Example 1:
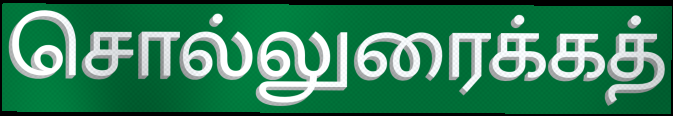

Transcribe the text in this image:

சொல்லுரைக்கத்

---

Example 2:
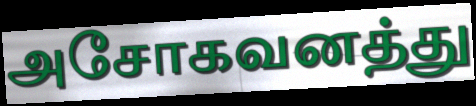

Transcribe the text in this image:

அசோகவனத்து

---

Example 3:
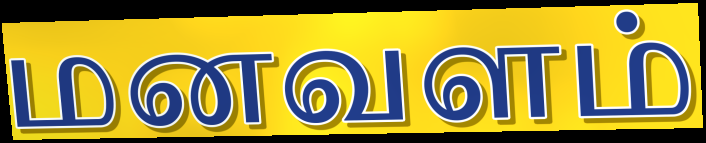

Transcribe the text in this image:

மனவளம்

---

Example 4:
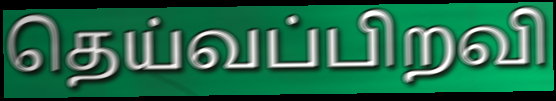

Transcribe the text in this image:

தெய்வப்பிறவி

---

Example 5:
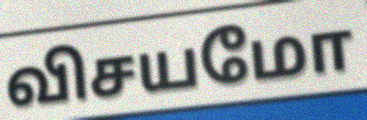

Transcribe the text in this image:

விசயமோ